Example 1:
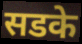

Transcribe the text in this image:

सडके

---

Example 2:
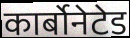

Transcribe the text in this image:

कार्बोनेटेड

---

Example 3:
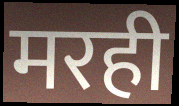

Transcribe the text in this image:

मरही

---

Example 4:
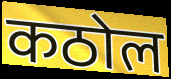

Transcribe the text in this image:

कठोल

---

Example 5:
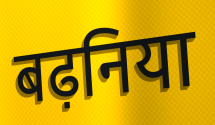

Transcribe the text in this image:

बढ़निया